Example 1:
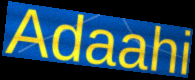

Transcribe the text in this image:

Adaahi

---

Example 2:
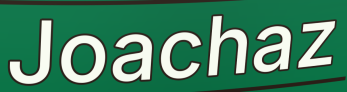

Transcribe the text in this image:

Joachaz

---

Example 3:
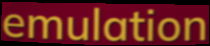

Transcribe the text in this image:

emulation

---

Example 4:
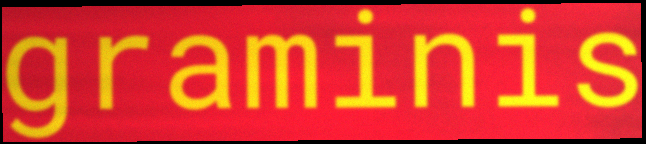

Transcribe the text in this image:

graminis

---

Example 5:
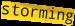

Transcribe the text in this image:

storming